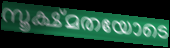
സൂക്ഷ്മതയോടെ